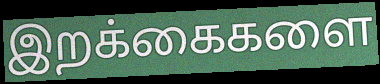
இறக்கைகளை